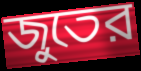
জুতের